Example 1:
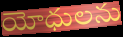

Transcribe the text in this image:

యోధులను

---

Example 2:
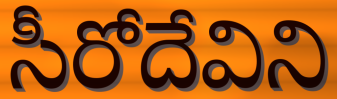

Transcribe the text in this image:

సీరోదేవిని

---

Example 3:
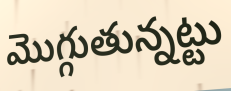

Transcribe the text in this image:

మొగ్గుతున్నట్టు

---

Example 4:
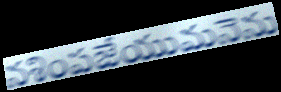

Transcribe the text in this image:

నశింపజేయుమనెను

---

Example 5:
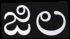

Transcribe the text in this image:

జిల